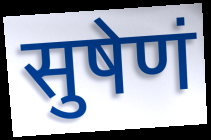
सुषेणं